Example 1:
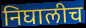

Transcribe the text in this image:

निघालीच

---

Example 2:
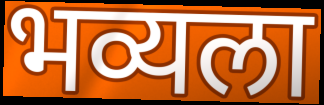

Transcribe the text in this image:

भव्यला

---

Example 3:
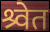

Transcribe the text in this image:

श्र्वेत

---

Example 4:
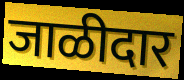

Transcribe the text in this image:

जाळीदार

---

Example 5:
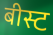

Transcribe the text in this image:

बीस्ट